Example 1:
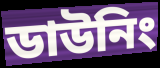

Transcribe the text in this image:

ডাউনিং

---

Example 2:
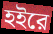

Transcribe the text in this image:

হইরে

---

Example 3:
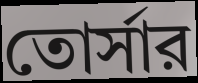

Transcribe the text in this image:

তোর্সার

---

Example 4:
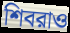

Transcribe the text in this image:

শিবরাও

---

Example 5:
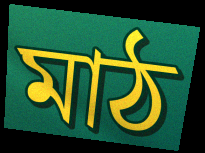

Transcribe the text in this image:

মাঠ